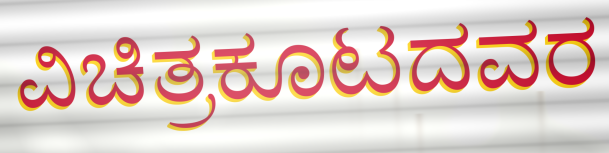
ವಿಚಿತ್ರಕೂಟದವರ